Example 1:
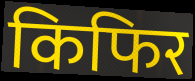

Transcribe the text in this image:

किफिर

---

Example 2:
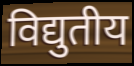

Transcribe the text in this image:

विद्युतीय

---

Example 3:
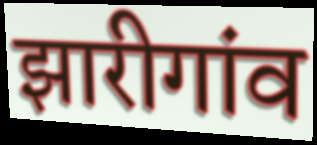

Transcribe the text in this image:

झारीगांव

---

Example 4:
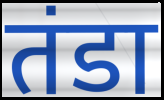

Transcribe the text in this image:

तंडा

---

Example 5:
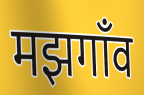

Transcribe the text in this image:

मझगाँव